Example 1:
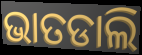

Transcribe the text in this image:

ଭାତଡାଲି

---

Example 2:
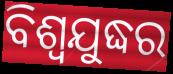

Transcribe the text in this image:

ବିଶ୍ବଯୁଦ୍ଧର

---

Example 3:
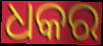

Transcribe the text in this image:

ଧକର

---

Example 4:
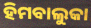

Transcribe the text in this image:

ହିମବାଲୁକା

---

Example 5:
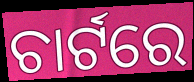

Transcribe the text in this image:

ଚାର୍ଟରେ